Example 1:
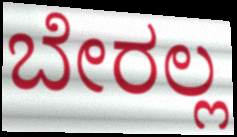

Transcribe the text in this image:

ಬೇರಲ್ಲ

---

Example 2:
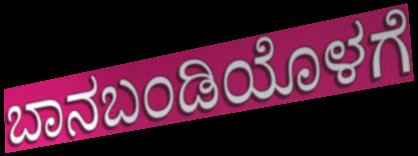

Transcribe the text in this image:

ಬಾನಬಂಡಿಯೊಳಗೆ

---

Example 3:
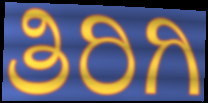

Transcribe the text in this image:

ತಿರಿಗಿ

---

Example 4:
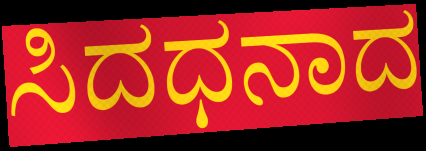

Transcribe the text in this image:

ಸಿದಧನಾದ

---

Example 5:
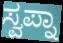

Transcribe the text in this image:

ಸ್ವಪ್ನಾ